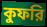
কুফরি